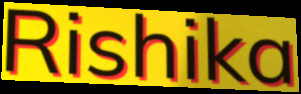
Rishika